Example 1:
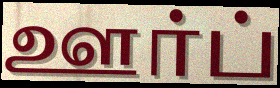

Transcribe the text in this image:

ஊர்ப்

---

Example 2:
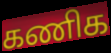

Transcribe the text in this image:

கணிக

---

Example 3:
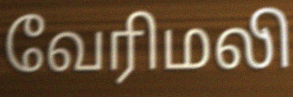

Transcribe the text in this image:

வேரிமலி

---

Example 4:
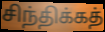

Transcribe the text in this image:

சிந்திக்கத்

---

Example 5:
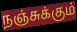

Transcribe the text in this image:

நஞ்சுக்கும்